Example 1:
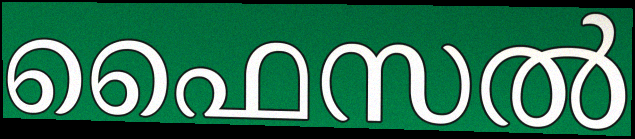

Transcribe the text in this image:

ഫൈസൽ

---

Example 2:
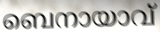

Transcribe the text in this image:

ബെനായാവ്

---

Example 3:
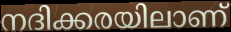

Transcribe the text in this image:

നദിക്കരയിലാണ്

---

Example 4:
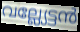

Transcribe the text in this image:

വല്ല്യേട്ടൻ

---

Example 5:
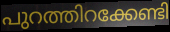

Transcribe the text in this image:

പുറത്തിറക്കേണ്ടി